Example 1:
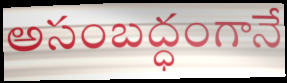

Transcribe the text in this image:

అసంబద్ధంగానే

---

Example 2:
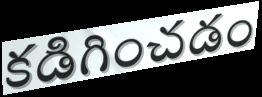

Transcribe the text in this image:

కడిగించడం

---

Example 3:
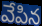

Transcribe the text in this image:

వేపిన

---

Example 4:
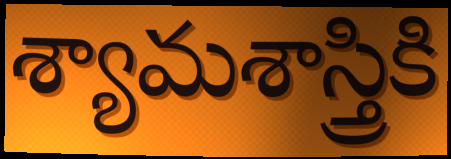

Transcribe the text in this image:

శ్యామశాస్త్రికి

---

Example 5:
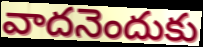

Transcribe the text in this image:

వాదనెందుకు